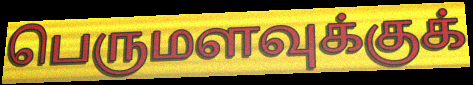
பெருமளவுக்குக்